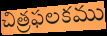
చిత్రఫలకము